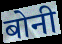
बोनी